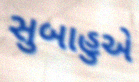
સુબાહુએ